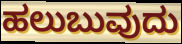
ಹಲುಬುವುದು